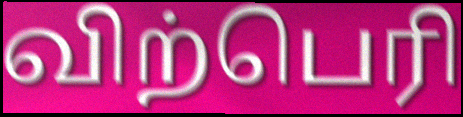
விற்பெரி